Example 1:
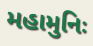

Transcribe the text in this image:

મહામુનિઃ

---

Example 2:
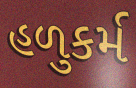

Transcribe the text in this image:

હળુકર્મ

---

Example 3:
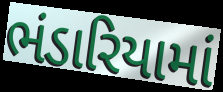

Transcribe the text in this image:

ભંડારિયામાં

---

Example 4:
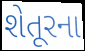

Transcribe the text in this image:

શેતૂરના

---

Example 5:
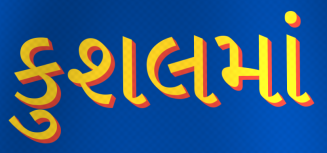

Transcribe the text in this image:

કુશલમાં